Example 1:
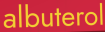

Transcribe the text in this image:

albuterol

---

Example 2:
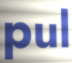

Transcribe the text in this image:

pul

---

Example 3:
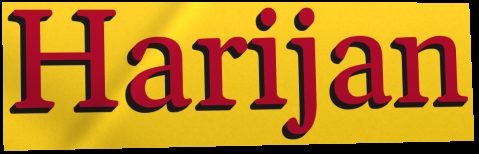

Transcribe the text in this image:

Harijan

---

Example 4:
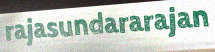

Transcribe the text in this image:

rajasundararajan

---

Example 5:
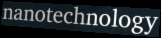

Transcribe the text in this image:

nanotechnology